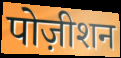
पोज़ीशन